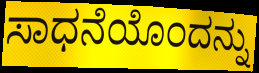
ಸಾಧನೆಯೊಂದನ್ನು